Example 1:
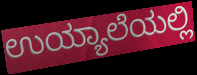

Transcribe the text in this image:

ಉಯ್ಯಾಲೆಯಲ್ಲಿ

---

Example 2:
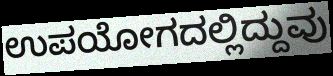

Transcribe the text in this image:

ಉಪಯೋಗದಲ್ಲಿದ್ದುವು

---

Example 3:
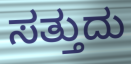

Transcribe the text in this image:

ಸತ್ತುದು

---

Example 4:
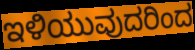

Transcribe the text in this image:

ಇಳಿಯುವುದರಿಂದ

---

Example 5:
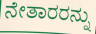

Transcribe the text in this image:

ನೇತಾರರನ್ನು